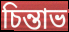
চিন্তাভ